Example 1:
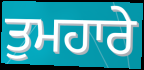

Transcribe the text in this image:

ਤੁਮਹਾਰੇ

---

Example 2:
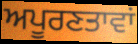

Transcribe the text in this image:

ਅਪੂਰਣਤਾਵਾਂ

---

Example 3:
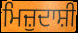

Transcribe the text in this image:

ਮਿਜ਼ੁਦਾਸ਼ੀ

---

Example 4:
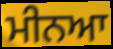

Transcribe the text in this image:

ਮੀਨਆ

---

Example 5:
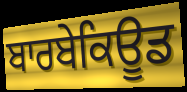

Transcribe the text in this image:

ਬਾਰਬੇਕਿਊਡ